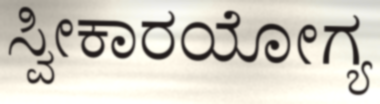
ಸ್ವೀಕಾರಯೋಗ್ಯ